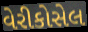
વેરીકોસેલ